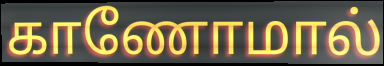
காணோமால்